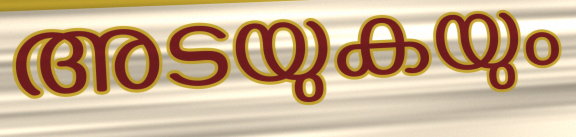
അടയുകയും